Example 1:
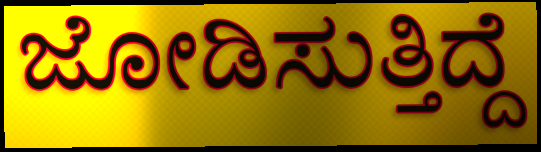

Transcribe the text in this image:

ಜೋಡಿಸುತ್ತಿದ್ದೆ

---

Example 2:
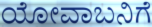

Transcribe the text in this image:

ಯೋವಾಬನಿಗೆ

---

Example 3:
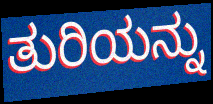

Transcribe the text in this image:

ತುರಿಯನ್ನು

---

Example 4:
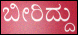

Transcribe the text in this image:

ಬೀರಿದ್ದು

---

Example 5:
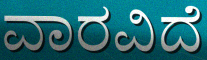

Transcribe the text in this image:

ವಾರವಿದೆ